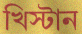
খিস্টান